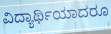
ವಿದ್ಯಾರ್ಥಿಯಾದರೂ